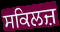
ਸਕਿਲਜ਼